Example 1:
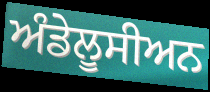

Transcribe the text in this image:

ਅੰਡੇਲੂਸੀਅਨ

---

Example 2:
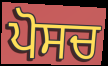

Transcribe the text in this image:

ਪੋਸਚ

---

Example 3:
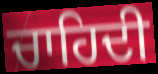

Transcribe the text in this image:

ਚਾਹਿਦੀ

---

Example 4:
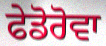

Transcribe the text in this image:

ਫੇਡੋਰੋਵਾ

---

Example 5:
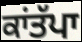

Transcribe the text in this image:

ਕਾਂਤੱਪਾ